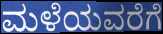
ಮಳೆಯವರೆಗೆ